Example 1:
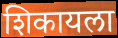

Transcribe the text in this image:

शिकायला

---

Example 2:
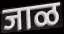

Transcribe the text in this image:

जाळ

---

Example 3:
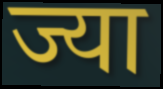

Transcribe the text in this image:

ज्या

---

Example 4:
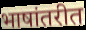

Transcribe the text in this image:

भाषांतरीत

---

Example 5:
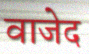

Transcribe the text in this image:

वाजेद